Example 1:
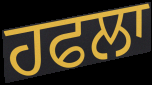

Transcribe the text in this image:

ਹਫਲਾ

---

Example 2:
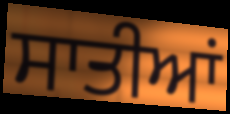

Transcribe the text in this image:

ਸਾਤੀਆਂ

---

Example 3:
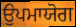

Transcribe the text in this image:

ਉਪਮਾਯੋਗ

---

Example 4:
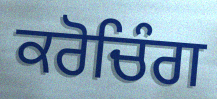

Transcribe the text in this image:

ਕਰੋਚਿੰਗ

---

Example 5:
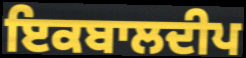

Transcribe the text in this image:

ਇਕਬਾਲਦੀਪ